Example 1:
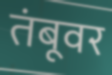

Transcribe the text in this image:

तंबूवर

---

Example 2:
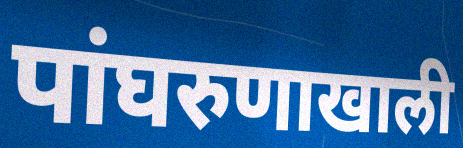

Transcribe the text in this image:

पांघरुणाखाली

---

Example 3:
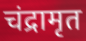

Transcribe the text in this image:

चंद्रामृत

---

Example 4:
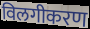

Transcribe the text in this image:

विलगीकरण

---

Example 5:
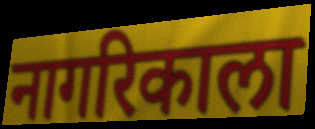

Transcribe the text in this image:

नागरिकाला